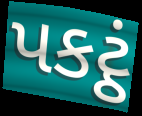
પકટ્ઠં